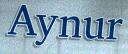
Aynur